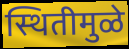
स्थितीमुळे